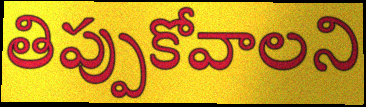
తిప్పుకోవాలని